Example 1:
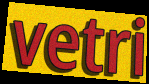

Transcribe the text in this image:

vetri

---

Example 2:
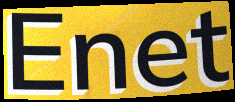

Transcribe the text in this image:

Enet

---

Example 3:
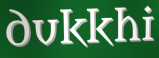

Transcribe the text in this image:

dukkhi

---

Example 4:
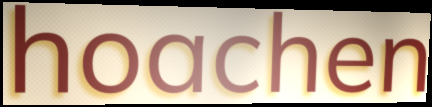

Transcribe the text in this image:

hoachen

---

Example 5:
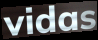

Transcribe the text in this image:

vidas